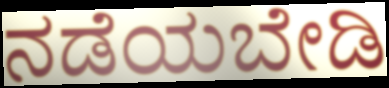
ನಡೆಯಬೇಡಿ